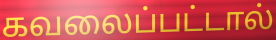
கவலைப்பட்டால்